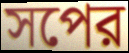
সপের